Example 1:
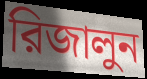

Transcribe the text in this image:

রিজালুন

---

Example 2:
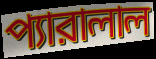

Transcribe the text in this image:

প্যারালাল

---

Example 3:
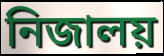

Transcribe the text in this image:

নিজালয়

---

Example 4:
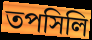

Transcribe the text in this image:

তপসিলি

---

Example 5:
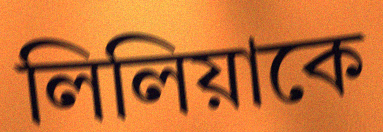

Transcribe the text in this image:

লিলিয়াকে